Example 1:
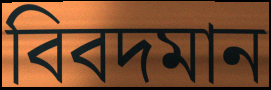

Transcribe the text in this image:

বিবদমান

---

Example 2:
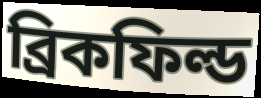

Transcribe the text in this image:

ব্রিকফিল্ড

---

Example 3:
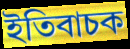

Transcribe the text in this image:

ইতিবাচক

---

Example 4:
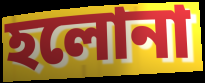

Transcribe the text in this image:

হলোনা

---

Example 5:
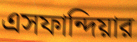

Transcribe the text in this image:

এসফান্দিয়ার